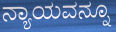
ನ್ಯಾಯವನ್ನೂ